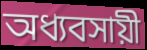
অধ্যবসায়ী